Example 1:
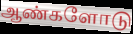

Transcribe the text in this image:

ஆண்களோடு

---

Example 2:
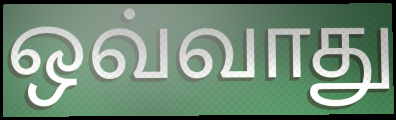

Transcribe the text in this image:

ஒவ்வாது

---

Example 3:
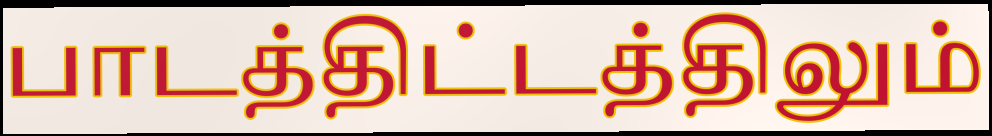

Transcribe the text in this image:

பாடத்திட்டத்திலும்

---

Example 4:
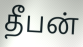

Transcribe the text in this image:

தீபன்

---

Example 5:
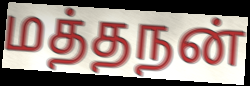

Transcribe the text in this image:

மத்தநன்